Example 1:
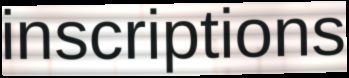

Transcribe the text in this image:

inscriptions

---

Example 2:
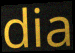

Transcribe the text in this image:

dia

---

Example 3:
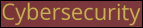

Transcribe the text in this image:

Cybersecurity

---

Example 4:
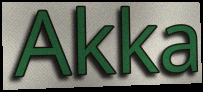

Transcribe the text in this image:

Akka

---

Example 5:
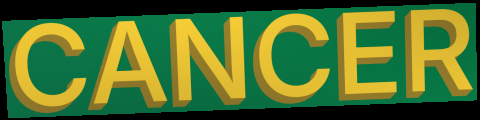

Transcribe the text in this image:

CANCER